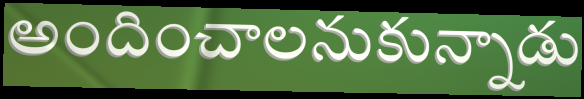
అందించాలనుకున్నాడు